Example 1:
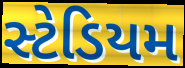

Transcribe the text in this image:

સ્ટેડિયમ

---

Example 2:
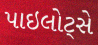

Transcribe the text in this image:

પાઇલોટ્સે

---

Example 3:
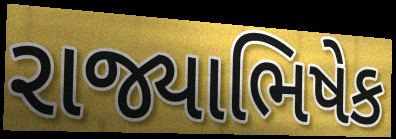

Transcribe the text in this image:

રાજ્યાભિષેક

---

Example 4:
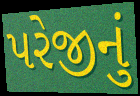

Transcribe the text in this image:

પરેજીનું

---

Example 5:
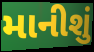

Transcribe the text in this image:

માનીશું